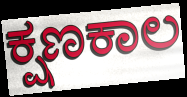
ಕ್ಷಣಕಾಲ